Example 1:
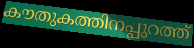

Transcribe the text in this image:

കൗതുകത്തിനപ്പുറത്ത്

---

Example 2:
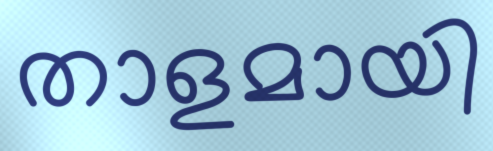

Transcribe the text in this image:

താളമായി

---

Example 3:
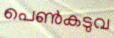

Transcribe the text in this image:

പെൺകടുവ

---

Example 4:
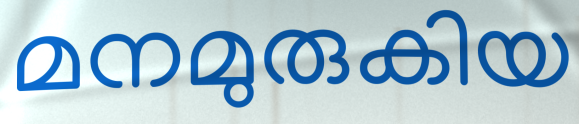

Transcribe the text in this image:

മനമുരുകിയ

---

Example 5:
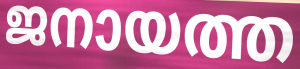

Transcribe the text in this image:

ജനായത്ത